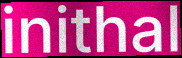
inithal